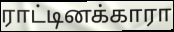
ராட்டினக்காரா